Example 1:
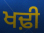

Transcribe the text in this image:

ਖਢ਼ੀ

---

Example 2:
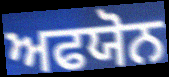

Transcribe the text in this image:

ਅਫਯੋਨ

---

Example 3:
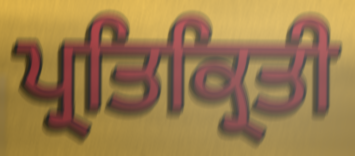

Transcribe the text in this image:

ਪ੍ਰਤਿਕ੍ਰਿਤੀ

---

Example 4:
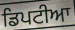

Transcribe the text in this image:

ਡਿਪਟੀਆ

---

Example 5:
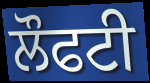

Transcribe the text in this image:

ਲੌਫਟੀ